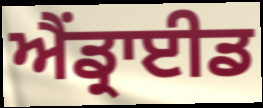
ਐਂਡ੍ਰਾਈਡ